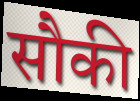
सौकी